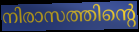
നിരാസത്തിന്റെ